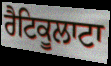
ਰੈਟਿਕੂਲਾਟਾ